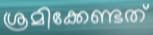
ശ്രമിക്കേണ്ടത്